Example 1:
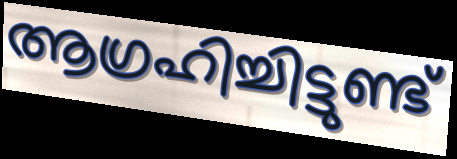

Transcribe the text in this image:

ആഗ്രഹിച്ചിട്ടുണ്ട്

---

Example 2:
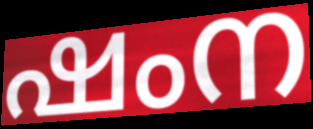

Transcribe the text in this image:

ഷംന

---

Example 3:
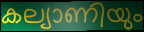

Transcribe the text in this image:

കല്യാണിയും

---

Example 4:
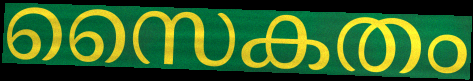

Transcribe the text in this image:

സൈകതം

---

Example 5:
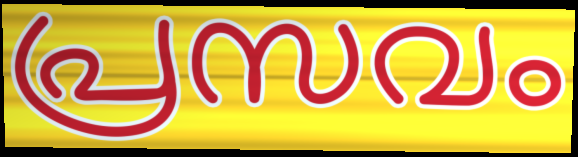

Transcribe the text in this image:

പ്രസവം